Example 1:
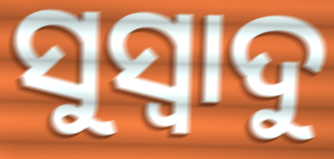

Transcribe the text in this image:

ସୁସ୍ଵାଦୁ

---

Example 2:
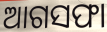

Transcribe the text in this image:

ଆଗସଫା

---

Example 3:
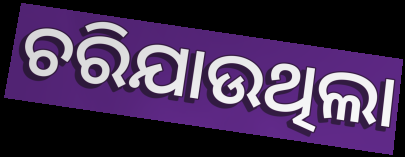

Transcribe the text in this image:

ଚରିଯାଉଥିଲା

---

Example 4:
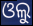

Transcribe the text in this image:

ଓଲୁ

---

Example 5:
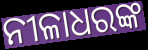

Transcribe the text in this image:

ନୀଳାଧରଙ୍କ